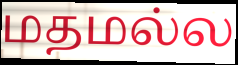
மதமல்ல